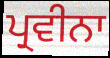
ਪ੍ਰਵੀਨਾ